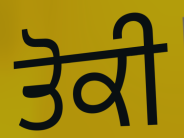
ਤੋਕੀ